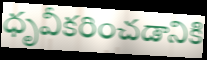
ధృవీకరించడానికి